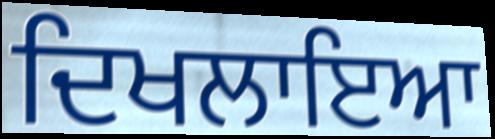
ਦਿਖਲਾਇਆ